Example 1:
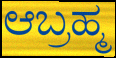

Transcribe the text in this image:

ಆಬ್ರಹ್ಮ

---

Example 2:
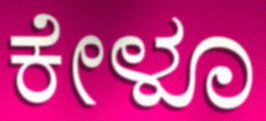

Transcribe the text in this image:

ಕೇಳೂ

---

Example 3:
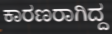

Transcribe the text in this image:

ಕಾರಣರಾಗಿದ್ದ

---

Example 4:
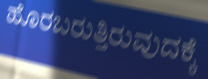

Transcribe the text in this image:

ಹೊರಬರುತ್ತಿರುವುದಕ್ಕೆ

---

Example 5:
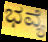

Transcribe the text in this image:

ಭವ್ಯೆ